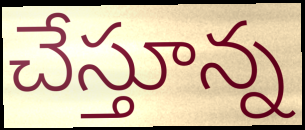
చేస్తూన్న